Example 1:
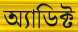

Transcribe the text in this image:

অ্যাডিক্ট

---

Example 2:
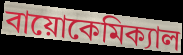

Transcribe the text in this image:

বায়োকেমিক্যাল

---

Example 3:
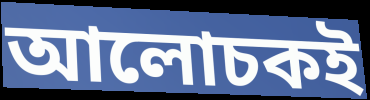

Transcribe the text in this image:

আলোচকই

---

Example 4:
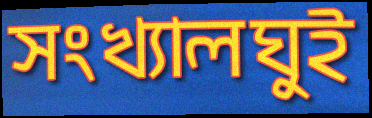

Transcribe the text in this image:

সংখ্যালঘুই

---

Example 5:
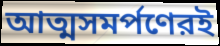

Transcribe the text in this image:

আত্মসমর্পণেরই